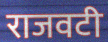
राजवटी